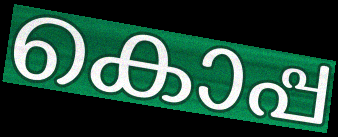
കൊപ്പ